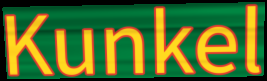
Kunkel